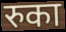
रुका